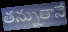
తన్నుతానే